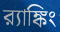
র‍্যাঙ্কিং